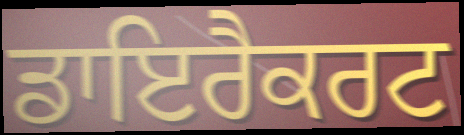
ਡਾਇਰੈਕਰਟ